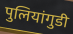
पुलियांगुडी